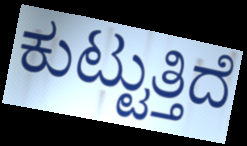
ಕುಟ್ಟುತ್ತಿದೆ